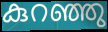
കുറഞ്ഞു